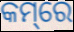
କମ୍‌ରେ